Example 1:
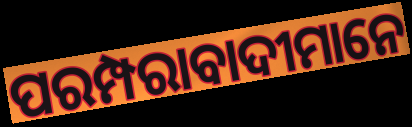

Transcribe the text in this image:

ପରମ୍ପରାବାଦୀମାନେ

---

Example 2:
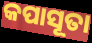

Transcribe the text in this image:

କପାସୂତା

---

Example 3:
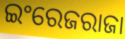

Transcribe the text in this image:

ଇଂରେଜରାଜା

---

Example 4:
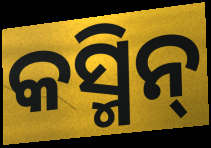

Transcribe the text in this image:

କସ୍ମିନ୍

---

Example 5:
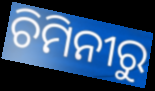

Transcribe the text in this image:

ଚିମିନୀରୁ